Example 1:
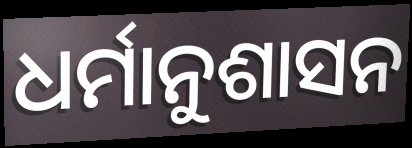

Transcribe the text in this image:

ଧର୍ମାନୁଶାସନ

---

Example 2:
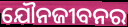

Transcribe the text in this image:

ଯୌନଜୀବନର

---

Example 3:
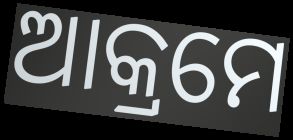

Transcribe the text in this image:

ଆକ୍ରମେ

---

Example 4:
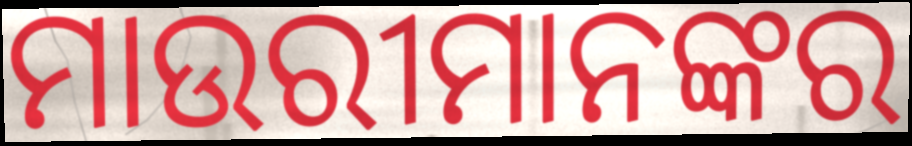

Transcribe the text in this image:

ମାଉରୀମାନଙ୍କର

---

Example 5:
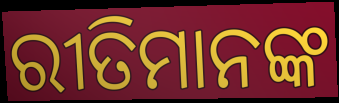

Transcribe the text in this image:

ରୀତିମାନଙ୍କ